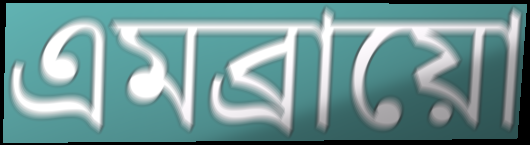
এমব্রায়ো